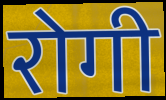
रोगी